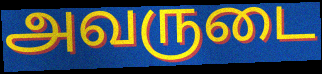
அவருடை